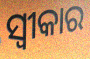
ସ୍ଵୀକାର